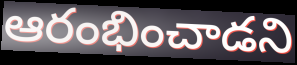
ఆరంభించాడని